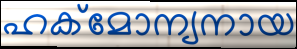
ഹക്മോന്യനായ